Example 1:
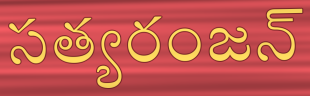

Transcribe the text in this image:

సత్యరంజన్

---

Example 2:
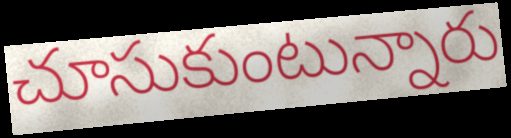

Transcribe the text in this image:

చూసుకుంటున్నారు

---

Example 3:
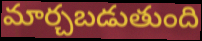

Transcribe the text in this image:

మార్చబడుతుంది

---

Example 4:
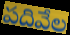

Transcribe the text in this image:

పదివేల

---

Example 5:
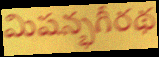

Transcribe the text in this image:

మిషన్భగీరథ